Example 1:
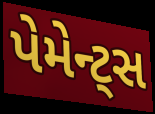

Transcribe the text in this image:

પેમેન્ટ્સ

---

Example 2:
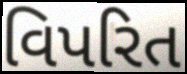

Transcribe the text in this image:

વિપરિત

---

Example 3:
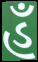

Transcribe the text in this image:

હઁ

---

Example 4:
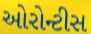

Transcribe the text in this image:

ઓરોન્ટીસ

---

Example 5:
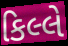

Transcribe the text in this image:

કિલ્લે